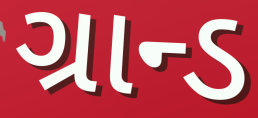
ગ્રાન્ડ